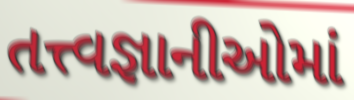
તત્ત્વજ્ઞાનીઓમાં